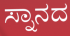
ಸ್ನಾನದ